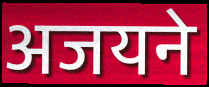
अजयने